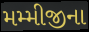
મમ્મીજીના